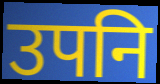
उपनि